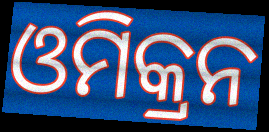
ଓମିକ୍ରନ